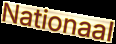
Nationaal